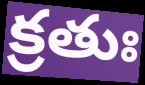
క్రతుః